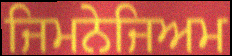
ਜਿਮਨੇਜਿਅਮ